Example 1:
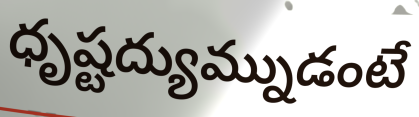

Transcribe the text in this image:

ధృష్టద్యుమ్నుడంటే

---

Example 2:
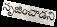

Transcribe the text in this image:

సృజించాడని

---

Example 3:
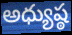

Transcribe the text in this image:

అధ్యుష్ఠ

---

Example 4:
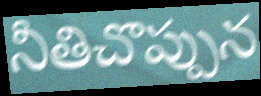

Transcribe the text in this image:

నీతిచొప్పున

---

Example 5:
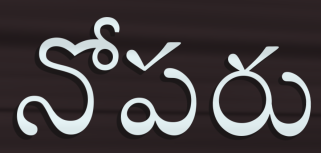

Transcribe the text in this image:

నోపరు